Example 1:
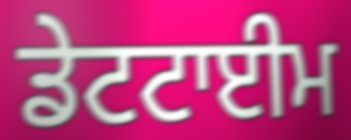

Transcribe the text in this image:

ਡੇਟਟਾਈਮ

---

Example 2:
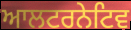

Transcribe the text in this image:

ਆਲਟਰਨੇਟਿਵ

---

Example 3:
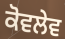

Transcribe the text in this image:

ਕੋਵਲੇਵ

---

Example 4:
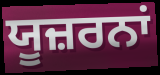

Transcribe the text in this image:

ਯੂਜ਼ਰਨਾਂ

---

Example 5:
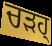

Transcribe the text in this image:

ਚੜਹ੍